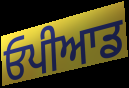
ਓਪੀਆਡ